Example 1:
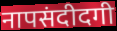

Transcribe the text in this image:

नापसंदीदगी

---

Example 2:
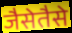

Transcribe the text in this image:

जैसेतैसे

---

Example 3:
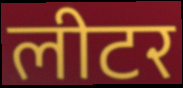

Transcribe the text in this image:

लीटर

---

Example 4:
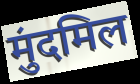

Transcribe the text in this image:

मुंदमिल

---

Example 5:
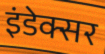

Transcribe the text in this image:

इंडेक्सर